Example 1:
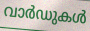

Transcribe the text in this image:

വാർഡുകൾ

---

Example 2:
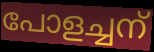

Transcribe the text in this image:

പോളച്ചന്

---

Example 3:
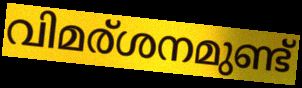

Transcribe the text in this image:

വിമര്ശനമുണ്ട്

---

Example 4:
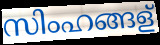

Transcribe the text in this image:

സിംഹങ്ങള്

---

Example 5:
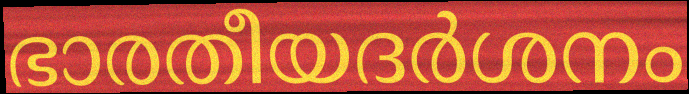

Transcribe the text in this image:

ഭാരതീയദർശനം